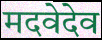
मदवेदेव